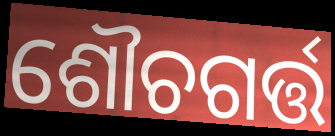
ଶୌଚଗର୍ତ୍ତ